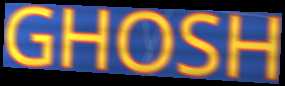
GHOSH